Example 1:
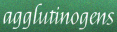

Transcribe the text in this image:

agglutinogens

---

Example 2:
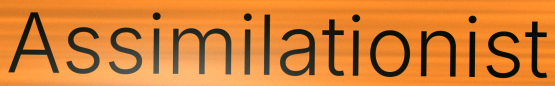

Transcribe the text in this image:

Assimilationist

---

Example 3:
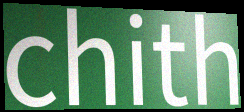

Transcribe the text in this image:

chith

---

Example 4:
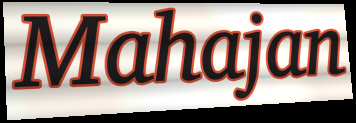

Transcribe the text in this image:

Mahajan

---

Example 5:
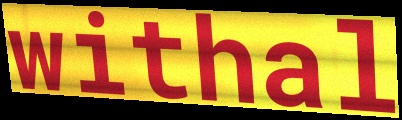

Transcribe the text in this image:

withal